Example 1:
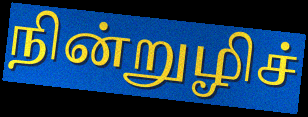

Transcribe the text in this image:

நின்றுழிச்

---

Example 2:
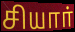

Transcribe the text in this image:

சியார்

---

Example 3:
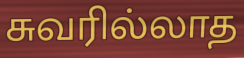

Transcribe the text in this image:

சுவரில்லாத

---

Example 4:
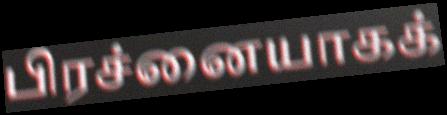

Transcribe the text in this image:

பிரச்னையாகக்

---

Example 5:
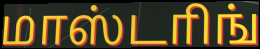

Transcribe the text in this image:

மாஸ்டரிங்